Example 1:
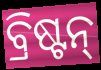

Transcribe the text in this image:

ବ୍ରିଷ୍ଟନ୍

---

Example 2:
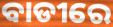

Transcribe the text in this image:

ବାଡୀରେ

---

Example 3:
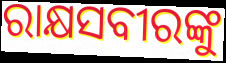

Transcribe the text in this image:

ରାକ୍ଷସବୀରଙ୍କୁ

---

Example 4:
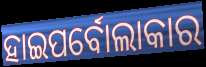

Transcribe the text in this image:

ହାଇପର୍ବୋଲାକାର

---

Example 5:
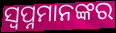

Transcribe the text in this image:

ସ୍ବପ୍ନମାନଙ୍କର